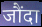
जौंदा